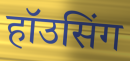
हॉउसिंग